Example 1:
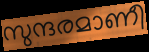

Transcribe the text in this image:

സുന്ദരമാണീ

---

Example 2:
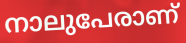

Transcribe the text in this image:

നാലുപേരാണ്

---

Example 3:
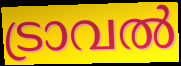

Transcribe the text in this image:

ട്രാവൽ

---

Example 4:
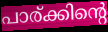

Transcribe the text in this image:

പാര്ക്കിന്റെ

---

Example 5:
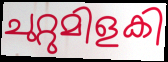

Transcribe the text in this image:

ചുറ്റുമിളകി